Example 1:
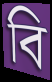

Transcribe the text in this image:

বি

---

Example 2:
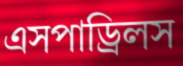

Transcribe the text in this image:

এসপাড্রিলস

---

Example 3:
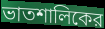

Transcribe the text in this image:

ভাতশালিকের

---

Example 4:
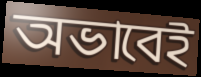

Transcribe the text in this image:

অভাবেই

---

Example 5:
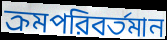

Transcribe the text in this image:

ক্রমপরিবর্তমান